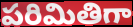
పరిమితిగా